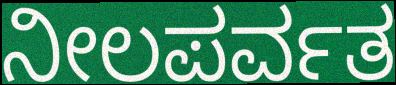
ನೀಲಪರ್ವತ